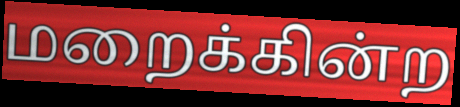
மறைக்கின்ற